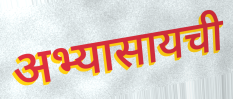
अभ्यासायची